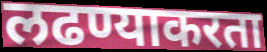
लढण्याकरता